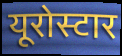
यूरोस्टार